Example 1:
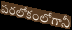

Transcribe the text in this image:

పరలోకంలోగానీ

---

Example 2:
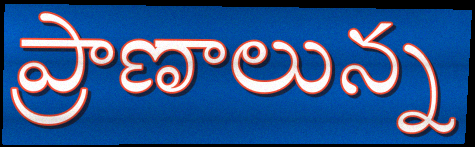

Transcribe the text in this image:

ప్రాణాలున్న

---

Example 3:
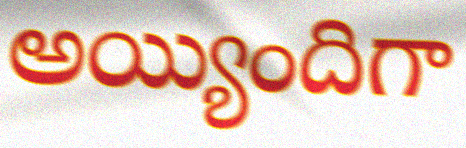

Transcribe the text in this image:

అయ్యిందిగా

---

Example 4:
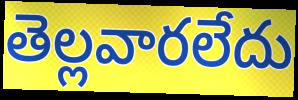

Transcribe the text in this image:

తెల్లవారలేదు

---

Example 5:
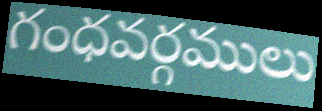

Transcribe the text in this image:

గంధవర్గములు